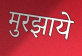
मुरझाये